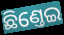
ଛିଣ୍ତେଇ